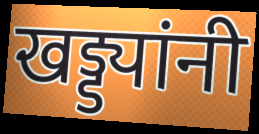
खड्ड्यांनी